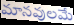
మానవులమే